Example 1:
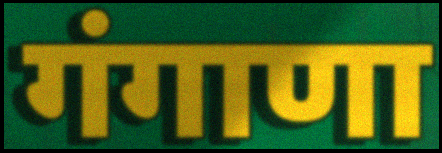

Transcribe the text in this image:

गंगाणा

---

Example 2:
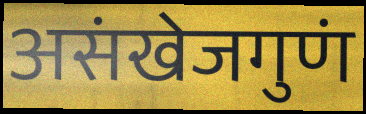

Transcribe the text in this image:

असंखेजगुणं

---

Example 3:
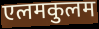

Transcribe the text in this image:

एलमकुलम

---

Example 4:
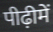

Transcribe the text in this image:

पीढ़ीमें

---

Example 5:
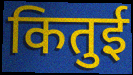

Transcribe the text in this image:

कितुई